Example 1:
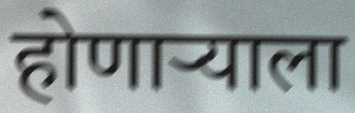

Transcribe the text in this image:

होणाऱ्याला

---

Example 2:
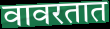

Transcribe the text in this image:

वावरतात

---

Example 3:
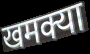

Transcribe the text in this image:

खमक्या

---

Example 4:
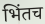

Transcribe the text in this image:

भिंतच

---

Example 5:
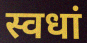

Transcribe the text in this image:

स्वधां